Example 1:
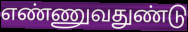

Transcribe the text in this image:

எண்ணுவதுண்டு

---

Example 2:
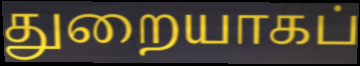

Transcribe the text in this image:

துறையாகப்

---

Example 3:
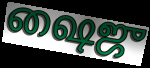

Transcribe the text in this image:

ஷைஜு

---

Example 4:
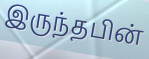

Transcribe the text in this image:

இருந்தபின்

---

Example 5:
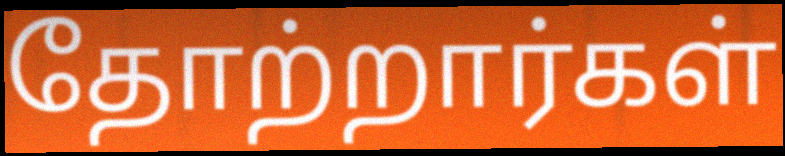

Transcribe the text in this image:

தோற்றார்கள்